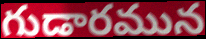
గుడారమున